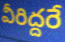
వీరిద్దరే